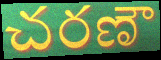
చరణౌ